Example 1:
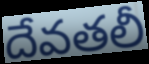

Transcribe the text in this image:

దేవతలీ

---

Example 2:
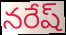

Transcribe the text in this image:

నరేష్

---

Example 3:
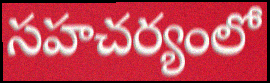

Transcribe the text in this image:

సహచర్యంలో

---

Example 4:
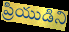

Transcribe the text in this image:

ప్రియుడిని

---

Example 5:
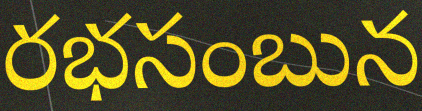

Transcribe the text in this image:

రభసంబున